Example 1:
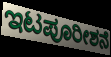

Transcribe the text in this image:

ಇಟಪೂರೀಶನೆ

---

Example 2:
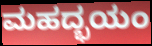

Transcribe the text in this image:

ಮಹದ್ಭಯಂ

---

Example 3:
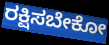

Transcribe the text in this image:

ರಕ್ಷಿಸಬೇಕೋ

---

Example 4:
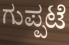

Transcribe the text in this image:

ಗುಪ್ಪಟೆ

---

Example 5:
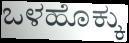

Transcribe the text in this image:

ಒಳಹೊಕ್ಕು